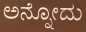
ಅನ್ನೋದು